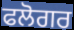
ਫਲੋਗਰ